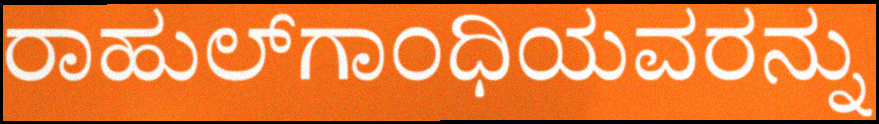
ರಾಹುಲ್‌ಗಾಂಧಿಯವರನ್ನು